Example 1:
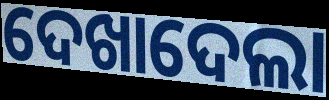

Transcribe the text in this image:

ଦେଖାଦେଲା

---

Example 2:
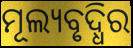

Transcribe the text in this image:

ମୂଲ୍ୟବୃଦ୍ଧିର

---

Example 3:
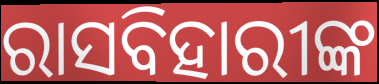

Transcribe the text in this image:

ରାସବିହାରୀଙ୍କ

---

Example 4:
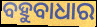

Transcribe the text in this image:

ବହୁବାଧାର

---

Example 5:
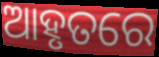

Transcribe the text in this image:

ଆହୃତରେ